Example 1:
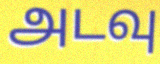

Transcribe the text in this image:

அடவு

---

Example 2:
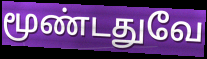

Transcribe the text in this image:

மூண்டதுவே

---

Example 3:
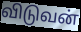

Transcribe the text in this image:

விடுவன்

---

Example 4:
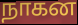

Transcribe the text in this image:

நாகன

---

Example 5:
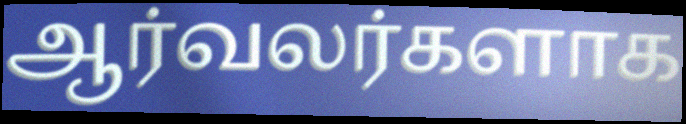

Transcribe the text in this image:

ஆர்வலர்களாக